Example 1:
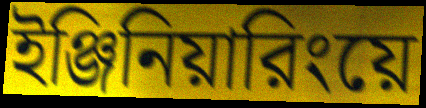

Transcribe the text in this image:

ইঞ্জিনিয়ারিংয়ে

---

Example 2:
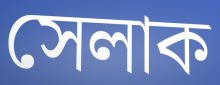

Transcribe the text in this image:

সেলাক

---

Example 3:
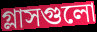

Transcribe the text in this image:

গ্লাসগুলো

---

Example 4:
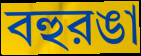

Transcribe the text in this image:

বহুরঙা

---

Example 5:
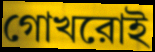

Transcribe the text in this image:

গোখরোই